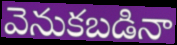
వెనుకబడినా